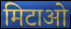
मिटाओ